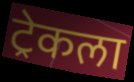
ट्रेकला